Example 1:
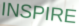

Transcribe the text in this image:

INSPIRE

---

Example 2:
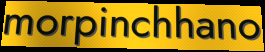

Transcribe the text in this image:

morpinchhano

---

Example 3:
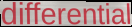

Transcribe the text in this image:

differential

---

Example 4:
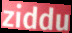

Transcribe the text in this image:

ziddu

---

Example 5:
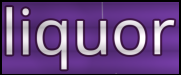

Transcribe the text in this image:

liquor